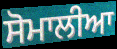
ਸੋਮਾਲੀਆ